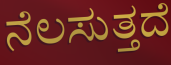
ನೆಲಸುತ್ತದೆ